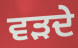
ਵੜਦੇ